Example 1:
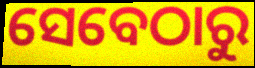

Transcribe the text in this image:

ସେବେଠାରୁ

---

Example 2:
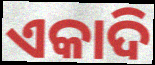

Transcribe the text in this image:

ଏକାଦି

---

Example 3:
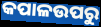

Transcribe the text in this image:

କପାଳଉପରୁ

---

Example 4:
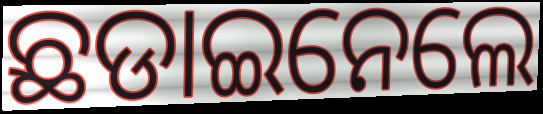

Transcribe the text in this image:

ଛଡାଇନେଲେ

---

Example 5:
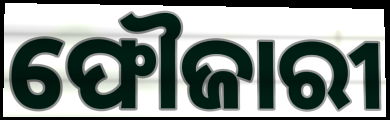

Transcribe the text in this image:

ଫୌଜାରୀ